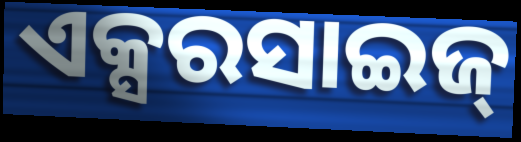
ଏକ୍ସରସାଇଜ୍